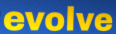
evolve